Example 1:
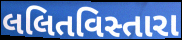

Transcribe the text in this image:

લલિતવિસ્તારા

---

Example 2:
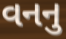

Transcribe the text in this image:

વનનુ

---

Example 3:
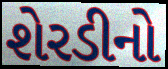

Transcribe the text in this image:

શેરડીનો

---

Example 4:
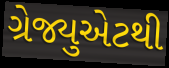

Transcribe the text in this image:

ગ્રેજ્યુએટથી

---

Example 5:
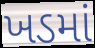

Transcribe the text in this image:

ખડમાં